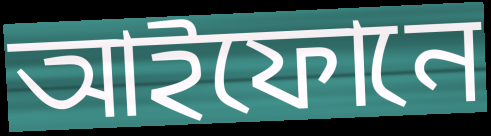
আইফোনে